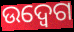
ଉଦ୍ବେଗ